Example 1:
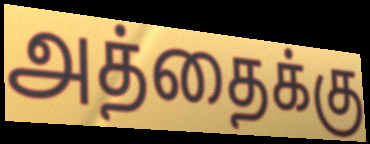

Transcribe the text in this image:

அத்தைக்கு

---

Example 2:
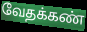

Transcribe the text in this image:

வேதக்கண்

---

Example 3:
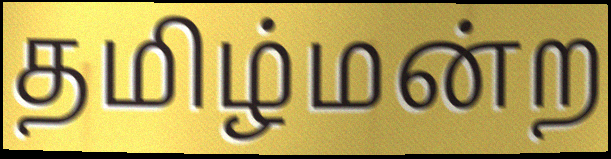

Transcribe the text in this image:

தமிழ்மன்ற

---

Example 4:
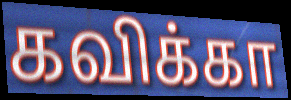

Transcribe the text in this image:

கவிக்கா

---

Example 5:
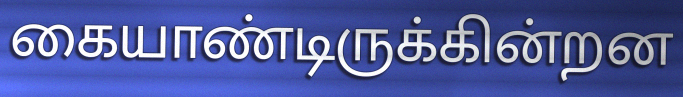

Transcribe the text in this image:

கையாண்டிருக்கின்றன